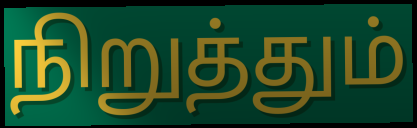
நிறுத்தும்